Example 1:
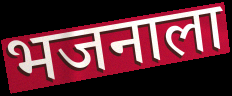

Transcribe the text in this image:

भजनाला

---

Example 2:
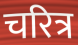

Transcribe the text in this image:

चरित्र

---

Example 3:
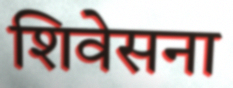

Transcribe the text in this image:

शिवेसना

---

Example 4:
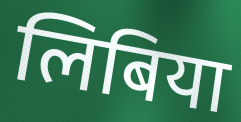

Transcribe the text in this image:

लिबिया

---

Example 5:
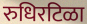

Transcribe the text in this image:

रुधिरटिळा